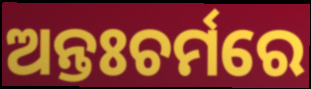
ଅନ୍ତଃଚର୍ମରେ